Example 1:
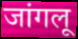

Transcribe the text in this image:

जांगलू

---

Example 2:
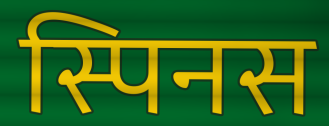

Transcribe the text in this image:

स्पिनस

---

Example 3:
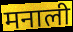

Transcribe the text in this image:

मनाली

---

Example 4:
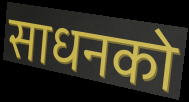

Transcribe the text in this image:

साधनको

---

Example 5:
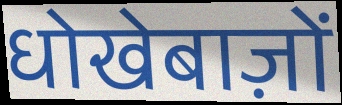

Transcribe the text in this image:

धोखेबाज़ों